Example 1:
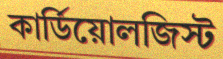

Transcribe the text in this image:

কার্ডিয়োলজিস্ট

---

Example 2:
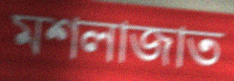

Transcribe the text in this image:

মশলাজাত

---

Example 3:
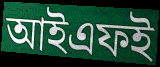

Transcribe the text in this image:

আইএফই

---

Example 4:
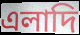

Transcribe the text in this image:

এলাদি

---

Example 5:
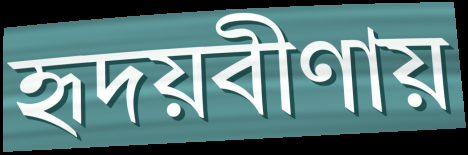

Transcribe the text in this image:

হৃদয়বীণায়